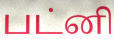
பட்னி